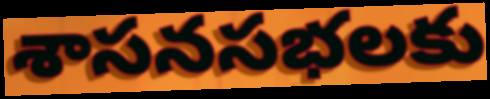
శాసనసభలకు